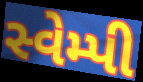
સ્વેમ્પી